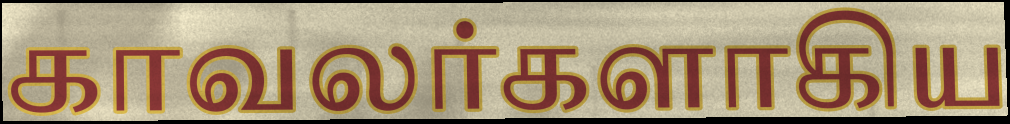
காவலர்களாகிய